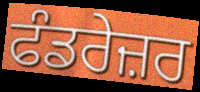
ਫੰਡਰੇਜ਼ਰ